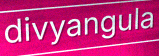
divyangula